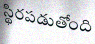
స్థిరపడుతోంది